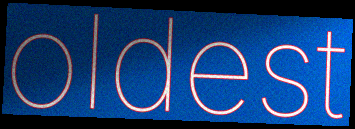
oldest